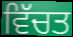
ਵਿੱਚਤ